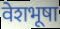
वेशभूषा